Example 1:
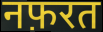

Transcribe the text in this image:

नफ़रत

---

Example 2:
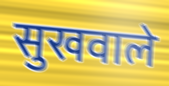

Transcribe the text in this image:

सुखवाले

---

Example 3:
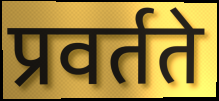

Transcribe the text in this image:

प्रवर्तते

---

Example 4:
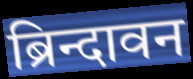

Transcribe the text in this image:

ब्रिन्दावन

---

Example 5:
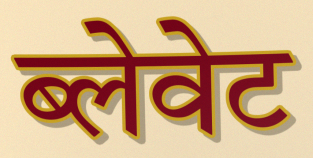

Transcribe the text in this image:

ब्लेवेट